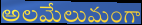
అలమేలుమంగా